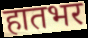
हातभर